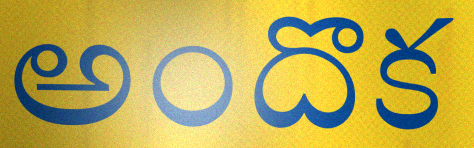
అందొక